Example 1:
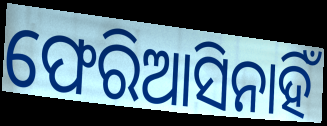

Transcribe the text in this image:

ଫେରିଆସିନାହିଁ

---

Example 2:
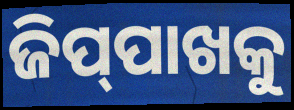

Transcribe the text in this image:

ଜିପ୍‌ପାଖକୁ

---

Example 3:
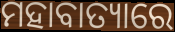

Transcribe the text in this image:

ମହାବାତ୍ୟାରେ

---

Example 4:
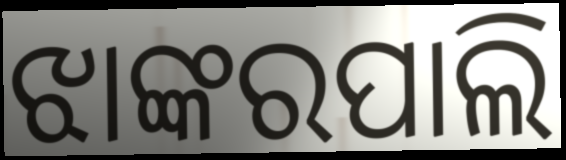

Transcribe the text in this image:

ଝାଙ୍କରପାଲି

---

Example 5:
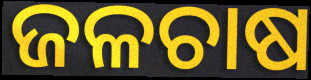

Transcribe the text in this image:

ଜଳଚାଷ